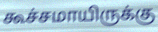
கூச்சமாயிருக்கு